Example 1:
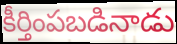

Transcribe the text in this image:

కీర్తింపబడినాడు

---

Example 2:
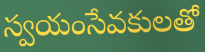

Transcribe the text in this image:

స్వయంసేవకులతో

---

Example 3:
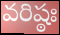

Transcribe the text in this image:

వరిష్ఠః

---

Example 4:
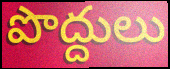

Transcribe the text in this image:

పొద్దులు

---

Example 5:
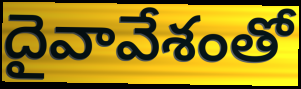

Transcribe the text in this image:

దైవావేశంతో